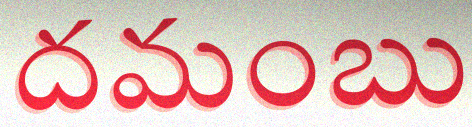
దమంబు